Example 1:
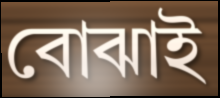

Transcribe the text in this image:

বোঝাই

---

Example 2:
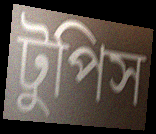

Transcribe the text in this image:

টুপিস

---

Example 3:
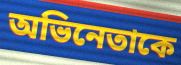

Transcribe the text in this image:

অভিনেতাকে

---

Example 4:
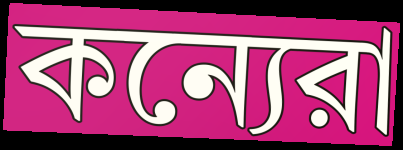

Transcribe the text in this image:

কন্যেরা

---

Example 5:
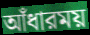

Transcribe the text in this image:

আঁধারময়